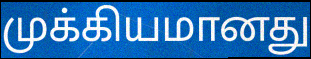
முக்கியமானது